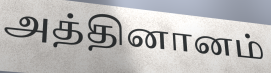
அத்தினானம்